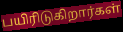
பயிரிடுகிறார்கள்